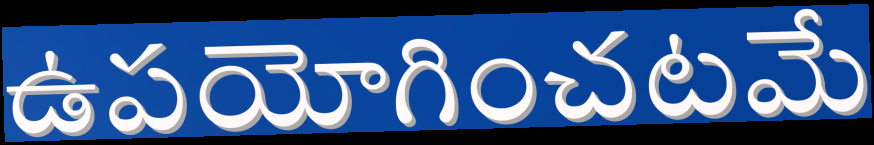
ఉపయోగించటమే